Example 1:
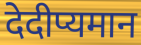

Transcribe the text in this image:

देदीप्यमान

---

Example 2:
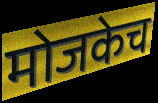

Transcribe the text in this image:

मोजकेच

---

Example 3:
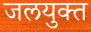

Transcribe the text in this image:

जलयुक्त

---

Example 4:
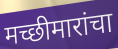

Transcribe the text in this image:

मच्छीमारांचा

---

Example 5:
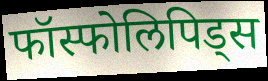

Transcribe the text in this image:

फॉस्फोलिपिड्स